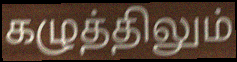
கழுத்திலும்